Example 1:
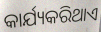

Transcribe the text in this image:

କାର୍ଯ୍ୟକରିଥାଏ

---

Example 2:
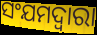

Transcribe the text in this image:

ସଂଯମଦ୍ୱାରା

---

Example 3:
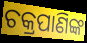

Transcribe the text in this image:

ଚକ୍ରପାଣିଙ୍କ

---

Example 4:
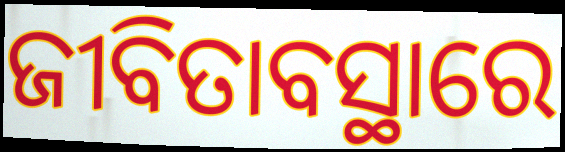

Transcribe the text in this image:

ଜୀବିତାବସ୍ଥାରେ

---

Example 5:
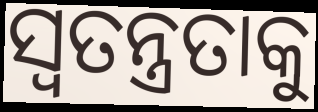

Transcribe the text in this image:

ସ୍ୱତନ୍ତ୍ରତାକୁ